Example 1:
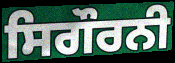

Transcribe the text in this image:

ਸਿਗੌਰਨੀ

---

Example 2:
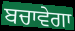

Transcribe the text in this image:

ਬਚਾਵੇਗਾ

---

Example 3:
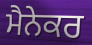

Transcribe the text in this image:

ਮੈਨੇਕਰ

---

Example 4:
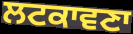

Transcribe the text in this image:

ਲਟਕਾਵਣਾ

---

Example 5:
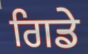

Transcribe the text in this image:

ਗਿਡੇ